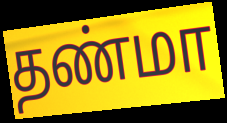
தண்மா